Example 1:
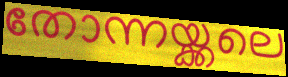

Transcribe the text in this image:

തോന്നയ്ക്കലെ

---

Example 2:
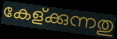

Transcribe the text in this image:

കേള്ക്കുന്നതു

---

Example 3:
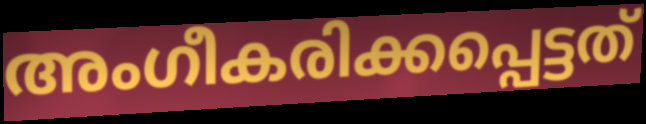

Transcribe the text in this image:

അംഗീകരിക്കപ്പെട്ടത്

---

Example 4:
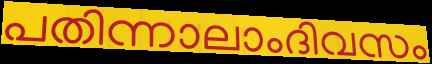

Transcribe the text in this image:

പതിന്നാലാംദിവസം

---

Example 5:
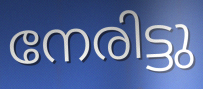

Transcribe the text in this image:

നേരിട്ടു